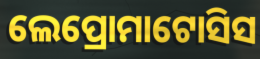
ଲେପ୍ରୋମାଟୋସିସ